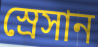
স্রেসান